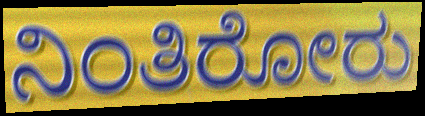
ನಿಂತಿರೋರು